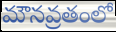
మౌనవ్రతంలో